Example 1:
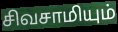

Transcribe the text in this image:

சிவசாமியும்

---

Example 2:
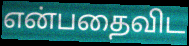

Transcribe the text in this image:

என்பதைவிட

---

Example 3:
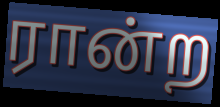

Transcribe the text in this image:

ரான்ற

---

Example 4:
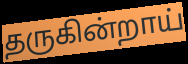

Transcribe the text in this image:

தருகின்றாய்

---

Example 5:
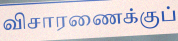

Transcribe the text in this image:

விசாரணைக்குப்